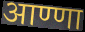
आण्णा